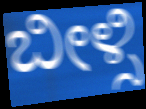
ಬೀಳ್ಸಿ